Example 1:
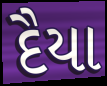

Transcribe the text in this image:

દૈયા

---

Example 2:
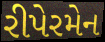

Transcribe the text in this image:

રીપેરમેન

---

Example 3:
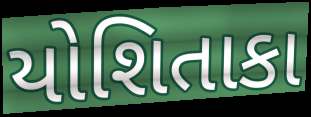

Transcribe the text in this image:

યોશિતાકા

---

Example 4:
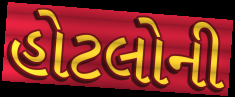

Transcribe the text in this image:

હોટલોની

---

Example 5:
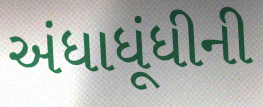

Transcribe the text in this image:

અંધાધૂંધીની